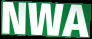
NWA